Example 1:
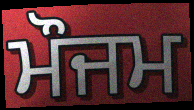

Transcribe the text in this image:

ਮੌਜਮ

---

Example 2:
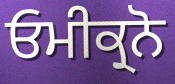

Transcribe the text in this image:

ਓਮੀਕ੍ਰਨੋ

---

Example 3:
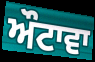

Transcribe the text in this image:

ਔਟਾਵਾ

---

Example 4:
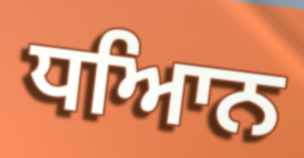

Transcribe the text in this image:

ਧਆਿਨ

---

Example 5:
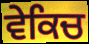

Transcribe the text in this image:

ਵੇਕਿਚ